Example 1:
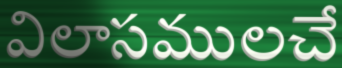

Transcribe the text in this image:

విలాసములచే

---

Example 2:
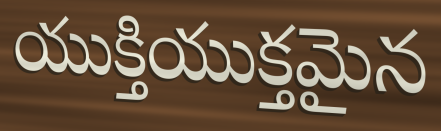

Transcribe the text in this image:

యుక్తియుక్తమైన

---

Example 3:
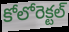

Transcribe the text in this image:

కోలోరెక్టల్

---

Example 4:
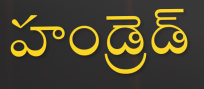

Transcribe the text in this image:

హండ్రెడ్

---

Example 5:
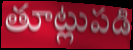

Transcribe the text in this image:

తూట్లుపడి